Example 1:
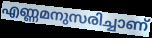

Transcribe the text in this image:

എണ്ണമനുസരിച്ചാണ്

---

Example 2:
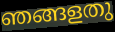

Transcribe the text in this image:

ഞങ്ങളതു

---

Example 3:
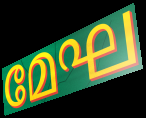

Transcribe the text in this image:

മേഘ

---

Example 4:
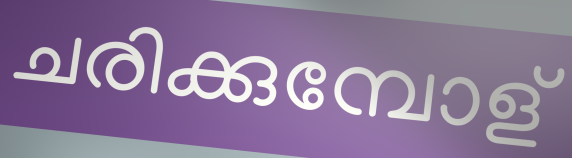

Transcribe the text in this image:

ചരിക്കുമ്പോള്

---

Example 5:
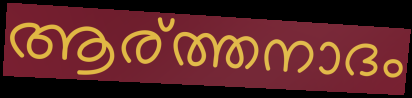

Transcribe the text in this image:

ആര്ത്തനാദം